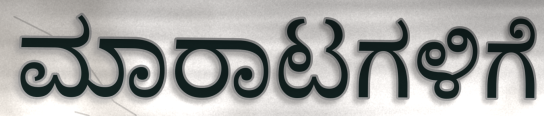
ಮಾರಾಟಗಳಿಗೆ